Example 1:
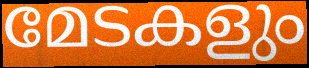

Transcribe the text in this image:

മേടകളും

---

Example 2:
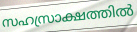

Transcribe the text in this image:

സഹസ്രാക്ഷത്തിൽ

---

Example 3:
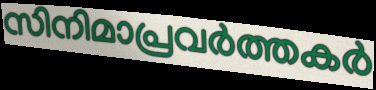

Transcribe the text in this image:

സിനിമാപ്രവർത്തകർ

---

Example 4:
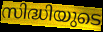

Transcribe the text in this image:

സിദ്ധിയുടെ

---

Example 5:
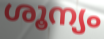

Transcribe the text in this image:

ശൂന്യം